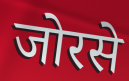
जोरसे